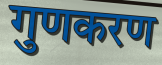
गुणकरण